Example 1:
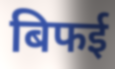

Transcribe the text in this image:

बिफई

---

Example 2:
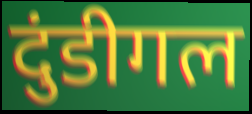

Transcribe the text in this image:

दुंडीगल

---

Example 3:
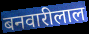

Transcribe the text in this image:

बनवारीलाल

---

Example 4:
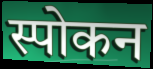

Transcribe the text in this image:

स्पोकन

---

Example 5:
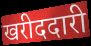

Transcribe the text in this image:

खरीददारी